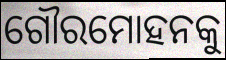
ଗୌରମୋହନକୁ